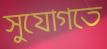
সুযোগতে